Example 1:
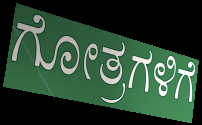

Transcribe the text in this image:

ಗೋತ್ರಗಳಿಗೆ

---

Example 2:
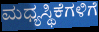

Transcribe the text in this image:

ಮಧ್ಯಸ್ಥಿಕೆಗಳಿಗೆ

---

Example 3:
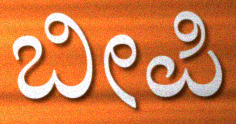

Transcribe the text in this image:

ಬೀಪಿ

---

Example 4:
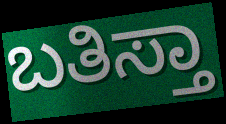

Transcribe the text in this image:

ಬತಿಸ್ತಾ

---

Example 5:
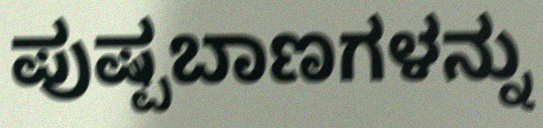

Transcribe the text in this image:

ಪುಷ್ಪಬಾಣಗಳನ್ನು